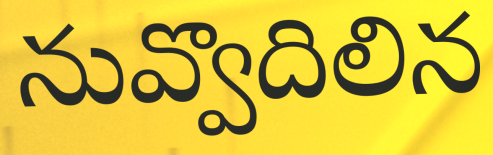
నువ్వొదిలిన